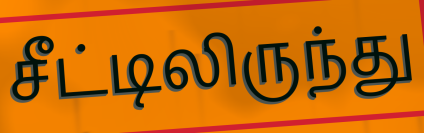
சீட்டிலிருந்து